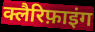
क्लैरिफ़ाइंग